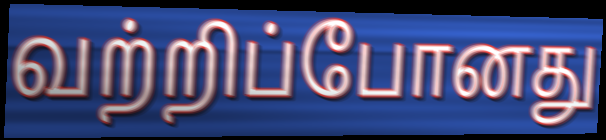
வற்றிப்போனது